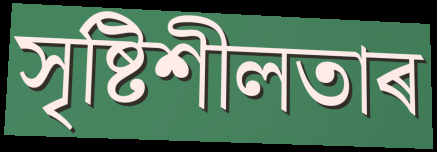
সৃষ্টিশীলতাৰ